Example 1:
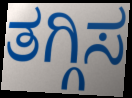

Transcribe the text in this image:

ತಗ್ಗಿಸ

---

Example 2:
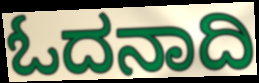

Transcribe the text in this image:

ಓದನಾದಿ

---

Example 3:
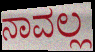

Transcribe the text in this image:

ನಾವಲ್ಲ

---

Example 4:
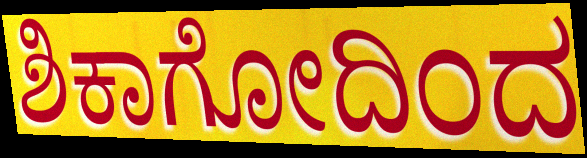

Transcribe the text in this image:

ಶಿಕಾಗೋದಿಂದ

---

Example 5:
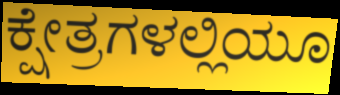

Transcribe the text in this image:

ಕ್ಷೇತ್ರಗಳಲ್ಲಿಯೂ